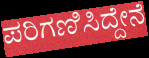
ಪರಿಗಣಿಸಿದ್ದೇನೆ